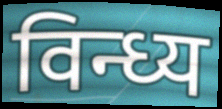
विन्ध्य